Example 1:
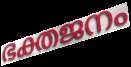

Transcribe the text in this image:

ഭക്തജനം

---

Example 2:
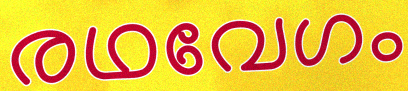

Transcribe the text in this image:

രഥവേഗം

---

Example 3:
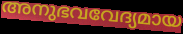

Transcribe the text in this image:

അനുഭവവേദ്യമായ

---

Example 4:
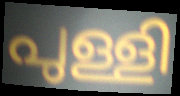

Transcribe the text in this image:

പുള്ളി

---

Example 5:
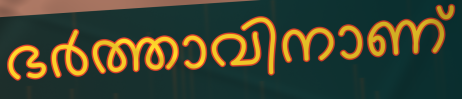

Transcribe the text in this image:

ഭർത്താവിനാണ്